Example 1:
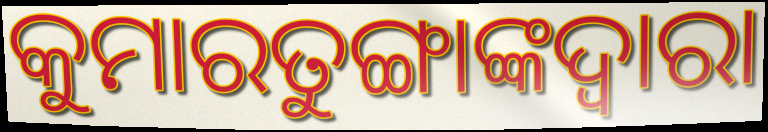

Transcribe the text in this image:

କୁମାରତୁଙ୍ଗାଙ୍କଦ୍ୱାରା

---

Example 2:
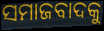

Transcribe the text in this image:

ସମାଜବାଦକୁ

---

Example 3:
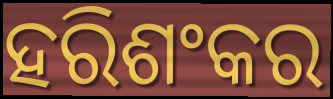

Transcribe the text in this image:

ହରିଶଂକର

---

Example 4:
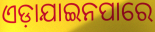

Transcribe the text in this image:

ଏଡ଼ାଯାଇନପାରେ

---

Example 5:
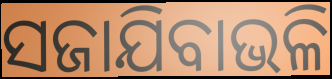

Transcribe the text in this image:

ସଜାଯିବାଭଳି